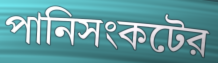
পানিসংকটের